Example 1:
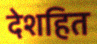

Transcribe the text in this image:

देशहित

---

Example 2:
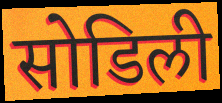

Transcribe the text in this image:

सोडिली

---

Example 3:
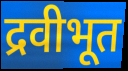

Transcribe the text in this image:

द्रवीभूत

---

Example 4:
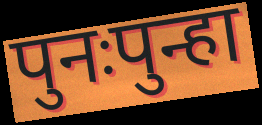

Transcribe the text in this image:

पुनःपुन्हा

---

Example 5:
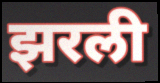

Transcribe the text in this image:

झरली